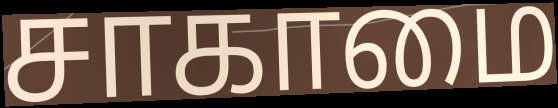
சாகாமை